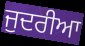
ਜੁਦਰੀਆ